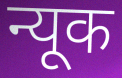
न्यूक